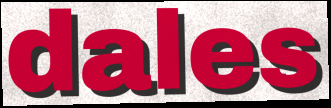
dales